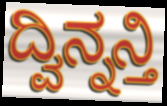
ದ್ವಿನ್ನನ್ತಿ